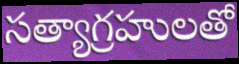
సత్యాగ్రహులతో